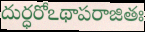
దుర్ధరోఽథాపరాజితః